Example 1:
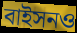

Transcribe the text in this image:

বাইসনও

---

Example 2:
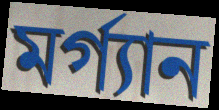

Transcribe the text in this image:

মর্গ্যান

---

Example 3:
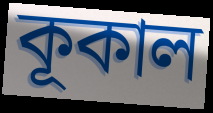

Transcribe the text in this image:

কূকাল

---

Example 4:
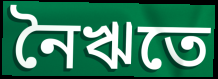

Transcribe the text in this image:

নৈঋতে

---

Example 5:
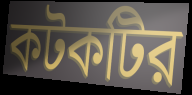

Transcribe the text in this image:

কটকটির